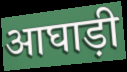
आघाड़ी